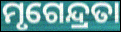
ମୃଗେନ୍ଦ୍ରତା